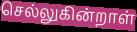
செல்லுகின்றாள்